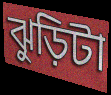
ঝুড়িটা